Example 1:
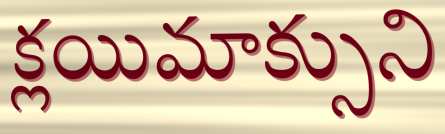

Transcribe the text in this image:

క్లయిమాక్సుని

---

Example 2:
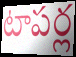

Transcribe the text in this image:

టాపర్ల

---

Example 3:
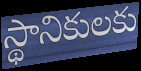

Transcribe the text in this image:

స్థానికులకు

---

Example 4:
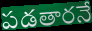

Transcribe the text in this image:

పడతారనే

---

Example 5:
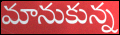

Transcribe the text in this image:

మానుకున్న